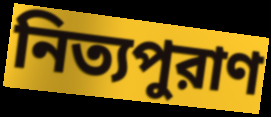
নিত্যপুরাণ